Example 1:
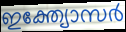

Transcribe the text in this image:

ഇക്ത്യോസർ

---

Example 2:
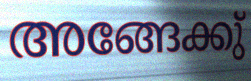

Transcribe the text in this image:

അങ്ങേക്കു്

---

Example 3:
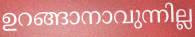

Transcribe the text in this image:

ഉറങ്ങാനാവുന്നില്ല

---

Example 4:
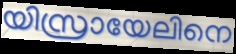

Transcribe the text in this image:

യിസ്രായേലിനെ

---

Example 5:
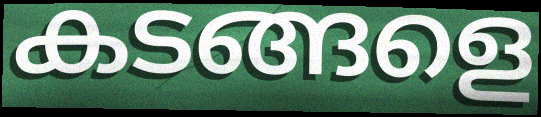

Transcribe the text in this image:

കടങ്ങളെ